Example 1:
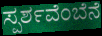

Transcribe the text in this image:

ಸ್ಪರ್ಶವೆಂಬೆನೆ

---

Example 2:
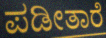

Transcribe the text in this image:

ಪಡೀತಾರೆ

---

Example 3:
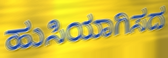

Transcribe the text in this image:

ಹುಸಿಯಾಗಿಸದ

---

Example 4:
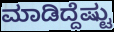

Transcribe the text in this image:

ಮಾಡಿದ್ದೆಷ್ಟು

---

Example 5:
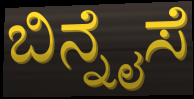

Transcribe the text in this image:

ಬಿನ್ನೈಸೆ